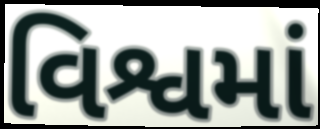
વિશ્વમાં